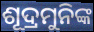
ଶୂଦ୍ରମୁନିଙ୍କ